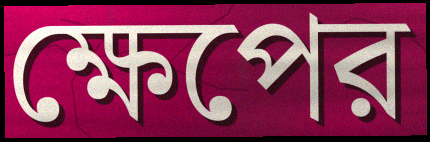
ক্ষেপের